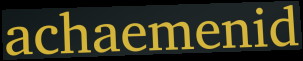
achaemenid